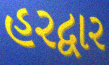
હરદ્વાર